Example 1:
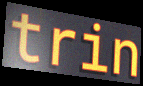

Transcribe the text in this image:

trin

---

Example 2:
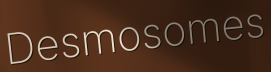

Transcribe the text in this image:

Desmosomes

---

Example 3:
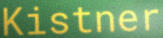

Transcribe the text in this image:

Kistner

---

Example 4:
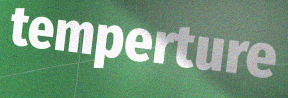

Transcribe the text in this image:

temperture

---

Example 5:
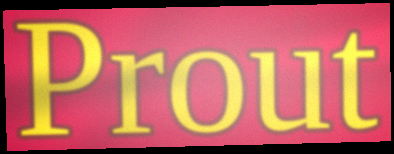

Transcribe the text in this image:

Prout